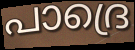
പാദ്രെ